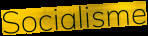
Socialisme